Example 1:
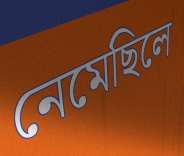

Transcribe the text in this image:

নেমেছিলে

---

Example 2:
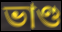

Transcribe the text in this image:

ভাণ্ড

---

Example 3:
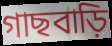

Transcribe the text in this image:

গাছবাড়ি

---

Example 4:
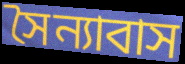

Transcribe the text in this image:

সৈন্যাবাস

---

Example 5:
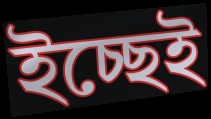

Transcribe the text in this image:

ইচ্ছেই